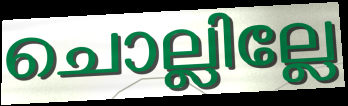
ചൊല്ലില്ലേ